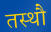
तस्थौ